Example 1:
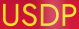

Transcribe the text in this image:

USDP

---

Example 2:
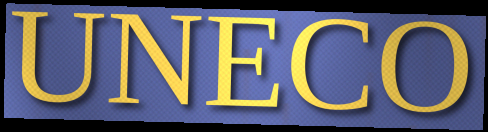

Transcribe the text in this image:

UNECO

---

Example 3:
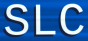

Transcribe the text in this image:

SLC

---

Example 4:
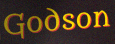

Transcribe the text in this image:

Godson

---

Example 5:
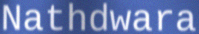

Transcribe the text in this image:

Nathdwara